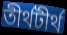
তীর্থটীর্থ